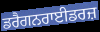
ਡਰੈਗਨਰਾਈਡਰਜ਼